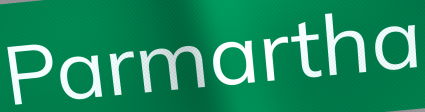
Parmartha